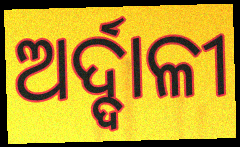
ଅର୍ଦ୍ଦାଳୀ